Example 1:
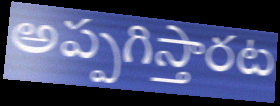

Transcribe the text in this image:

అప్పగిస్తారట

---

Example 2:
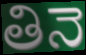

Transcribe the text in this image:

తినె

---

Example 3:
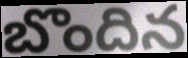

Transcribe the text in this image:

బొందిన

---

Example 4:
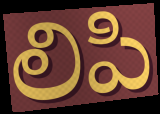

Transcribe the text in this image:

లిపి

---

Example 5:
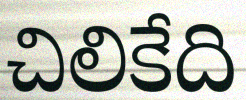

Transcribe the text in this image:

చిలికేది